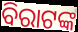
ବିରାଟଙ୍କ